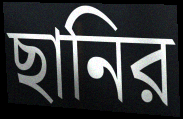
ছানির